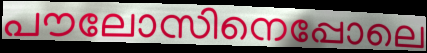
പൗലോസിനെപ്പോലെ